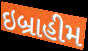
ઇબ્રાહીમ